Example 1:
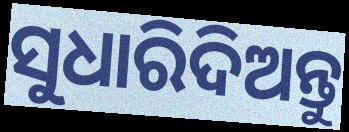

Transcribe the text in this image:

ସୁଧାରିଦିଅନ୍ତୁ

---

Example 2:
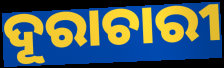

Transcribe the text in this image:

ଦୂରାଚାରୀ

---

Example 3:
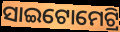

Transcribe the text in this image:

ସାଇଟୋମେଟ୍ରି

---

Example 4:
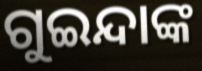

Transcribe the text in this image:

ଗୁଇନ୍ଦାଙ୍କ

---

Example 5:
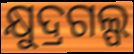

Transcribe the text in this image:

କ୍ଷୁଦ୍ରଗଲ୍ପ